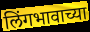
लिंगभावाच्या